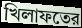
খিলাফতের